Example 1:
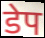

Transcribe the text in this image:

डेप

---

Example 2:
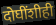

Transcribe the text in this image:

दोघींशीही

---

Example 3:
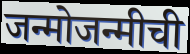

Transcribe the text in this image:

जन्मोजन्मीची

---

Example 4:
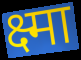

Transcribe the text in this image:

क्ष्मा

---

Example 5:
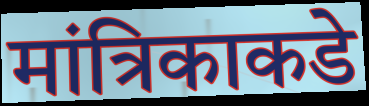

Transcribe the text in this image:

मांत्रिकाकडे